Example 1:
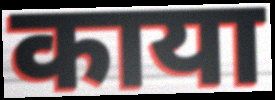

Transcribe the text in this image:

काया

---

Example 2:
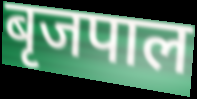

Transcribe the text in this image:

बृजपाल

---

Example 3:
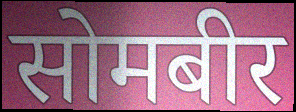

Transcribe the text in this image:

सोमबीर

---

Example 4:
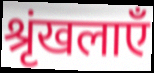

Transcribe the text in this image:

श्रृंखलाएँ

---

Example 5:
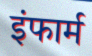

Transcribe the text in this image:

इंफार्म